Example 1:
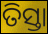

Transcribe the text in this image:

ତିସ୍ତା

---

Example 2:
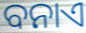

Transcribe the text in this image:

ବନାଏ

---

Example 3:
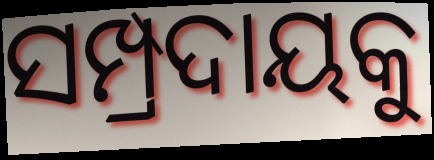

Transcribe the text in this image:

ସମ୍ପ୍ରଦାୟକୁ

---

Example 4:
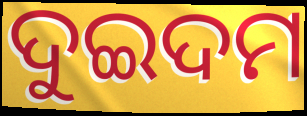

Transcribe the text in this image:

ଦୁଇଦମ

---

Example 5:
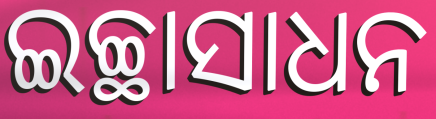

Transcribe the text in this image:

ଇଚ୍ଛାସାଧନ